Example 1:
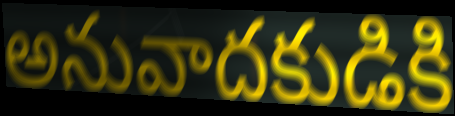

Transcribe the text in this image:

అనువాదకుడికి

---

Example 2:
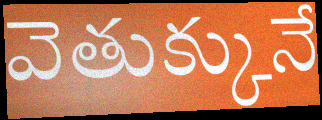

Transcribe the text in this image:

వెతుక్కునే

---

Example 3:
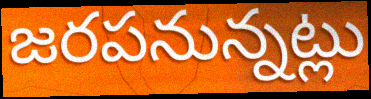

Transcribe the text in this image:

జరపనున్నట్లు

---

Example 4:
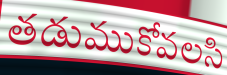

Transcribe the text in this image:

తడుముకోవలసి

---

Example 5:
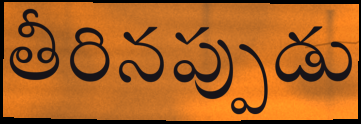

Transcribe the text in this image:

తీరినప్పుడు